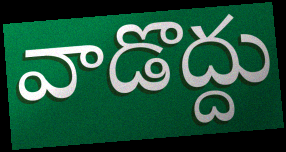
వాడొద్దు